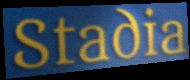
Stadia